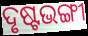
ଦୃଷ୍ଟଭଙ୍ଗୀ